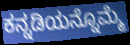
ಕನ್ನಡಿಯನ್ನೊಮ್ಮೆ